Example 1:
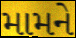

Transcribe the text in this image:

મામને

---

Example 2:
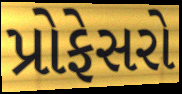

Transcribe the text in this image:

પ્રોફેસરો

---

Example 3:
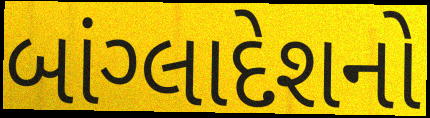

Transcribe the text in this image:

બાંગ્લાદેશનો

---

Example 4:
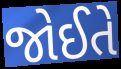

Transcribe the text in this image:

જોઈતે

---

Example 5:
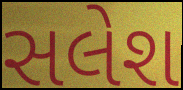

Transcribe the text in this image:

સલેશ